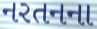
નરતનના